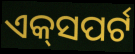
ଏକ୍‌ସପର୍ଟ